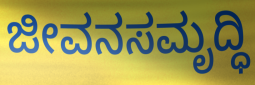
ಜೀವನಸಮೃದ್ಧಿ